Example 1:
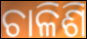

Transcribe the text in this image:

ଚାଳିଶି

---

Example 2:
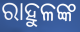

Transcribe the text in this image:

ରାହୁଳଙ୍କ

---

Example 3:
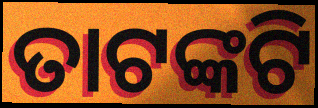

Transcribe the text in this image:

ତାଟଙ୍କଟି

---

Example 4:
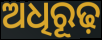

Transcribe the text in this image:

ଅଧିରୂଢ଼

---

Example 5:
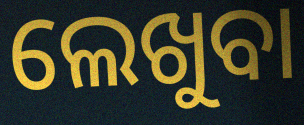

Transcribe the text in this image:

ଲେଖୁବା